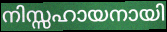
നിസ്സഹായനായി